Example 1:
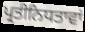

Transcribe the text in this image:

ਪ੍ਰਤੀਨਿਧਤਾਵਾਂ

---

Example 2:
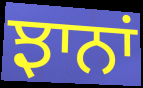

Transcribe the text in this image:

ਝਾਨਾਂ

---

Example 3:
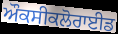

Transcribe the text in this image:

ਔਕਸੀਕਲੋਰਾਈਡ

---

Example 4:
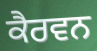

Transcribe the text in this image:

ਕੈਰਵਨ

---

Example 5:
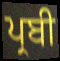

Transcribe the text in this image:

ਪ੍ਰਬੀ